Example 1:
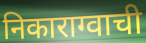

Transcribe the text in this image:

निकाराग्वाची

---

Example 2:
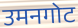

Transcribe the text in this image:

उमनगोट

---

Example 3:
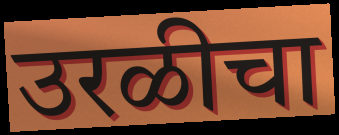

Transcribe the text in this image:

उरळीचा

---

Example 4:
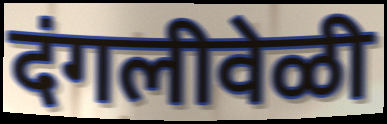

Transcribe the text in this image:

दंगलीवेळी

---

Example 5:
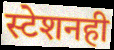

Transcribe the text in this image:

स्टेशनही